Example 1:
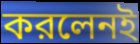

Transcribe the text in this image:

করলেনই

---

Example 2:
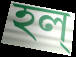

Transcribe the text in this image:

হল্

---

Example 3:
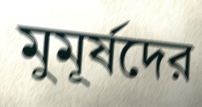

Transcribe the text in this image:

মুমূর্ষদের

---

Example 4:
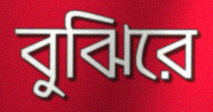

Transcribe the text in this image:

বুঝিরে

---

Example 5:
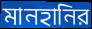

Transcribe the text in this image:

মানহানির